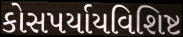
કોસપર્યાયવિશિષ્ટ